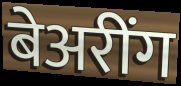
बेअरींग